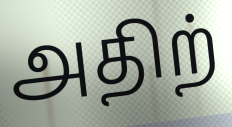
அதிற்